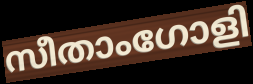
സീതാംഗോളി